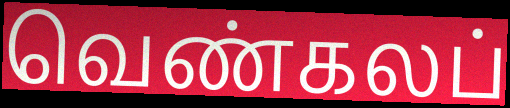
வெண்கலப்